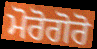
ਮੋਰੋਗੋਰੋ